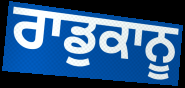
ਰਾਡੁਕਾਨੂ